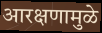
आरक्षणामुळे